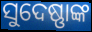
ସୁଦେଷ୍ଣାଙ୍କ